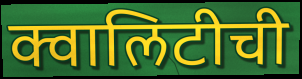
क्वालिटीची